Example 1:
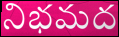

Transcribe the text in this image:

నిభమద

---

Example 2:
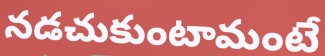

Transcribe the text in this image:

నడచుకుంటామంటే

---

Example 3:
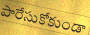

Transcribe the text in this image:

పారేసుకోకుండా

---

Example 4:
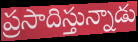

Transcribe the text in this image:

ప్రసాదిస్తున్నాడు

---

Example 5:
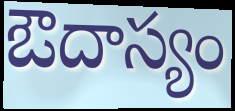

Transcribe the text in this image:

ఔదాస్యం